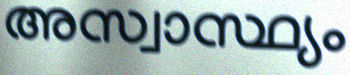
അസ്വാസ്ഥ്യം